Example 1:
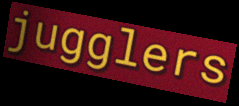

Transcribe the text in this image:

jugglers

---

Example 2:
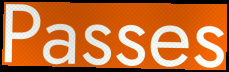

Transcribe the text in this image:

Passes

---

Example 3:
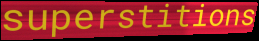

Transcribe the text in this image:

superstitions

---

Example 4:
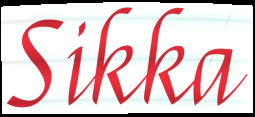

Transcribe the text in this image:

Sikka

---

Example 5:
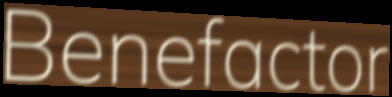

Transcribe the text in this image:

Benefactor